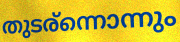
തുടര്ന്നൊന്നും